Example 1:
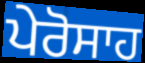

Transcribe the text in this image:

ਪੇਰੋਸਾਹ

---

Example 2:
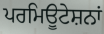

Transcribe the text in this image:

ਪਰਮਿਊਟੇਸ਼ਨਾਂ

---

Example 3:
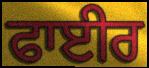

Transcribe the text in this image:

ਫਾਈਰ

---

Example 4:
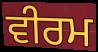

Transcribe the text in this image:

ਵੀਰਮ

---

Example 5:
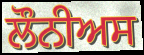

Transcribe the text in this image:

ਲੌਨੀਅਸ